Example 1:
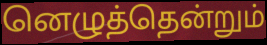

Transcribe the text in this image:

னெழுத்தென்றும்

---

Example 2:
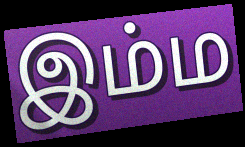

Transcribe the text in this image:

இம்ம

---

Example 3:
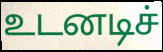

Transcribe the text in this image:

உடனடிச்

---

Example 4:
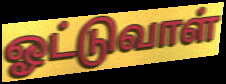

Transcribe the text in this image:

ஓட்டுவாள்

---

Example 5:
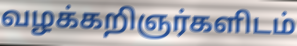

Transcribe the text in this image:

வழக்கறிஞர்களிடம்